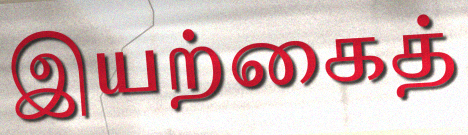
இயற்கைத்